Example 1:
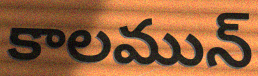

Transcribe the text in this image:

కాలమున్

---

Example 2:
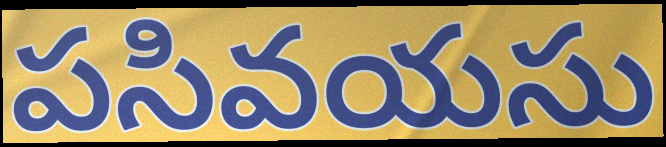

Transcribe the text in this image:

పసివయసు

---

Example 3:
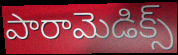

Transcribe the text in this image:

పారామెడిక్స్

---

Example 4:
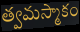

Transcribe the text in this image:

త్వమస్మాకం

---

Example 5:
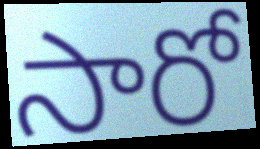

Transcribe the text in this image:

సారో